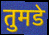
तुमडे